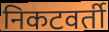
निकटवर्ती